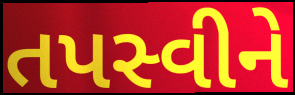
તપસ્વીને